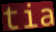
tia